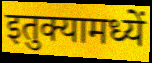
इतुक्यामध्यें